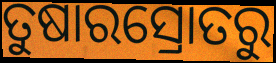
ତୁଷାରସ୍ରୋତରୁ